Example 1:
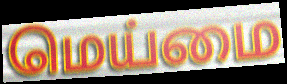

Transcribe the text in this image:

மெய்மை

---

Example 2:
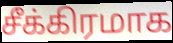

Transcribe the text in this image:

சீக்கிரமாக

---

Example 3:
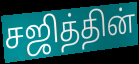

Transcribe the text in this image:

சஜித்தின்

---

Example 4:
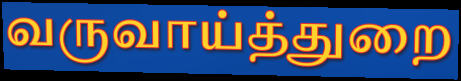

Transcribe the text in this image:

வருவாய்த்துறை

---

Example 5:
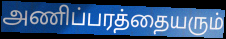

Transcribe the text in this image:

அணிப்பரத்தையரும்